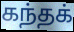
கந்தக்